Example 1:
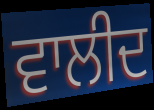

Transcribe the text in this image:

ਵਾਲੀਦ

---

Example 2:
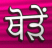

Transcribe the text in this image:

ਥੋੜੇਂ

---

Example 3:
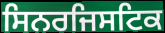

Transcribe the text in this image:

ਸਿਨਰਜਿਸਟਿਕ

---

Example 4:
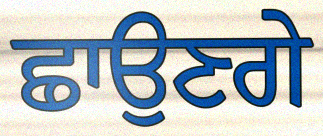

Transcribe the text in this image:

ਛਾਉਣਗੇ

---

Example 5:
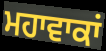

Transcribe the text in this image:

ਮਹਾਵਾਕਾਂ